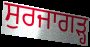
ਸੁਰਜਾਗੜ੍ਹ